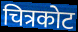
चित्रकोट